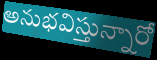
అనుభవిస్తున్నారో